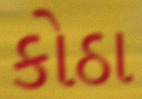
કોઠા